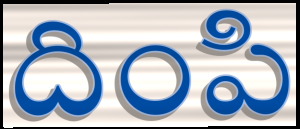
దింపి